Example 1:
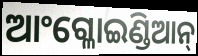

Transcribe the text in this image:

ଆଂଗ୍ଳୋଇଣ୍ଡିଆନ୍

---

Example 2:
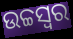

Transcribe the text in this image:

ଉଚ୍ଚସ୍ବର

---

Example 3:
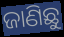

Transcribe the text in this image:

ଜାଣିଛୁ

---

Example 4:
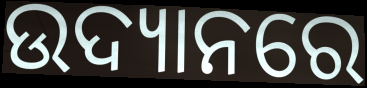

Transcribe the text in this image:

ଉଦ୍ୟାନରେ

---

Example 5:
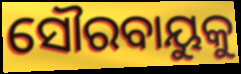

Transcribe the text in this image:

ସୌରବାୟୁକୁ